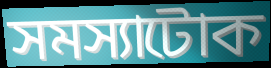
সমস্যাটোক